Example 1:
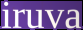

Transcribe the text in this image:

iruva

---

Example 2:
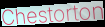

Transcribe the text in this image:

Chestorton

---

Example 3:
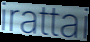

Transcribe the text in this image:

irattai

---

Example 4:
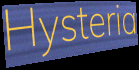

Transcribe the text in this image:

Hysteria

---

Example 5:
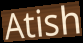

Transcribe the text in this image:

Atish